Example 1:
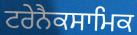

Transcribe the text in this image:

ਟਰੇਨੈਕਸਾਮਿਕ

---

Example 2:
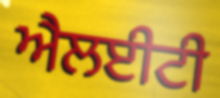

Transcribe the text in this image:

ਐਲਈਟੀ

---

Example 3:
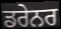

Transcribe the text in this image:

ਡਰੇਨਰ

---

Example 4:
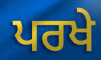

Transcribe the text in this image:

ਪਰਖੇ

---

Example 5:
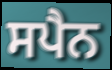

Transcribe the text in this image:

ਸਪੈਨ